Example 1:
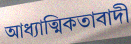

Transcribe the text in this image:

আধ্যাত্মিকতাবাদী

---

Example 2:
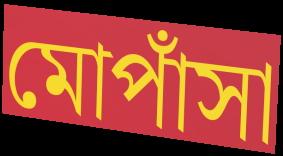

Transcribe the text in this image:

মোপাঁসা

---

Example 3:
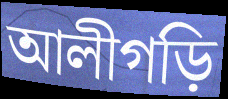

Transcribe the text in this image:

আলীগড়ি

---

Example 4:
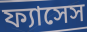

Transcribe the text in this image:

ফ্যাসেস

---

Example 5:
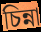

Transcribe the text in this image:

চিন্না